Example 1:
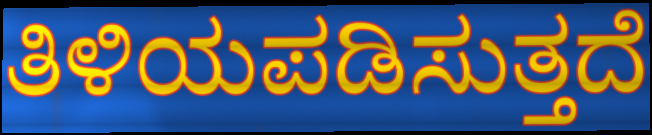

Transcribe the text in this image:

ತಿಳಿಯಪಡಿಸುತ್ತದೆ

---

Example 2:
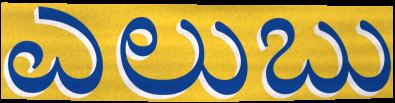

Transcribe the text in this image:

ಎಲುಬು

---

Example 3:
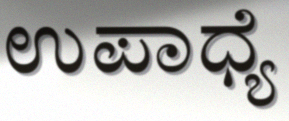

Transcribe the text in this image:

ಉಪಾಧ್ಯೆ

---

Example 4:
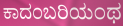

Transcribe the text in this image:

ಕಾದಂಬರಿಯಂಥ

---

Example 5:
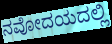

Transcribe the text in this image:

ನವೋದಯದಲ್ಲಿ